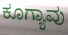
ಕೂಗ್ಯಾವು